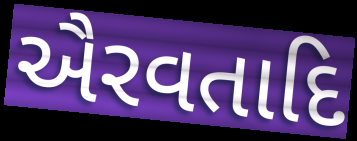
ઐરવતાદિ